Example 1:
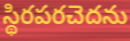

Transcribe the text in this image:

స్థిరపరచెదను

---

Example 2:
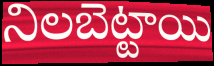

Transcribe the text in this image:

నిలబెట్టాయి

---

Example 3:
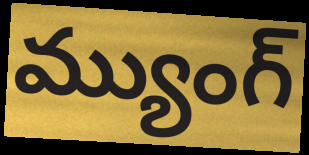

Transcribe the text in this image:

మ్యుంగ్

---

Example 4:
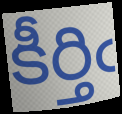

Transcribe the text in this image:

కీర్తిఁ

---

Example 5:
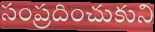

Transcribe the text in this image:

సంప్రదించుకుని